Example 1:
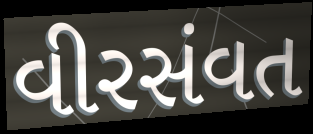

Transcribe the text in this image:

વીરસંવત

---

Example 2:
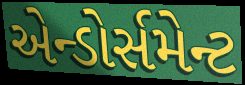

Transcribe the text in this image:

એન્ડોર્સમેન્ટ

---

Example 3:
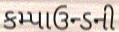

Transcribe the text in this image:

કમ્પાઉન્ડની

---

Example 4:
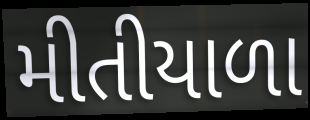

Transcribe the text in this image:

મીતીયાળા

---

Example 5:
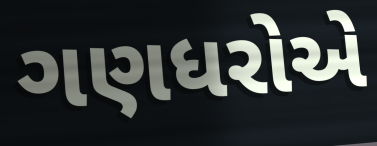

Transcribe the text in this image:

ગણધરોએ